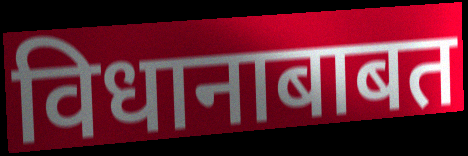
विधानाबाबत